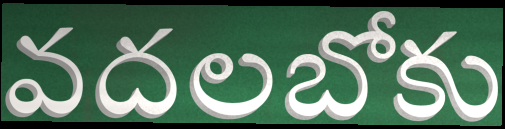
వదలబోకు